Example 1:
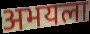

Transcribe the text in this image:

अभयला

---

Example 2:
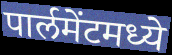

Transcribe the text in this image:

पार्लमेंटमध्ये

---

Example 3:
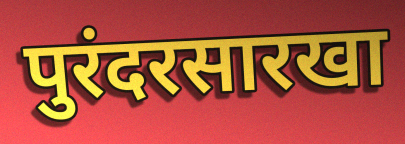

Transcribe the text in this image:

पुरंदरसारखा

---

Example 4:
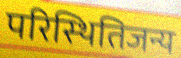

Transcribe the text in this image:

परिस्थितिजन्य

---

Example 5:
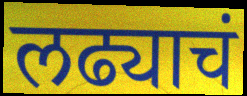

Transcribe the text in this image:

लढ्याचं